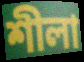
শীলা